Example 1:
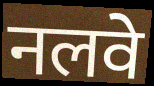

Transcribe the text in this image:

नलवे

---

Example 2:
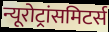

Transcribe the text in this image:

न्यूरोट्रांसमिटर्स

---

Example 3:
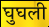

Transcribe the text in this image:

घुघली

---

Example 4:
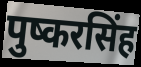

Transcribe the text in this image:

पुष्करसिंह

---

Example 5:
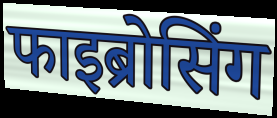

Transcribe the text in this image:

फाइब्रोसिंग